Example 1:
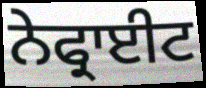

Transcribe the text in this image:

ਨੇਫ੍ਰਾਈਟ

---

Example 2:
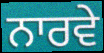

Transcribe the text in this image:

ਨਾਰਵੇ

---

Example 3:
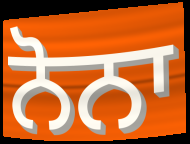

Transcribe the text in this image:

ਨੋਨਾ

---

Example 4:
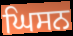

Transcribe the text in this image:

ਘਿਸਨ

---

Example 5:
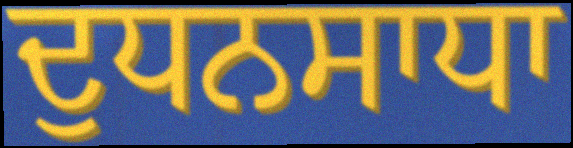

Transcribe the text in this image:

ਦੁਧਨਸਾਧਾ